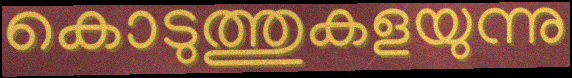
കൊടുത്തുകളയുന്നു